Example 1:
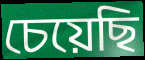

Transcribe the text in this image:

চেয়েছি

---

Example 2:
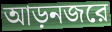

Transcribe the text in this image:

আড়নজরে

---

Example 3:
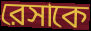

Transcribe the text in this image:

রেসাকে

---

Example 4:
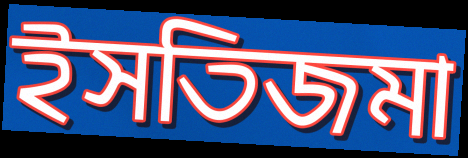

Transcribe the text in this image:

ইসতিজমা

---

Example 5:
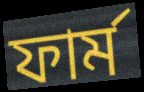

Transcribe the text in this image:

ফার্ম